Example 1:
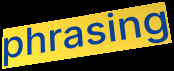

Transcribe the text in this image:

phrasing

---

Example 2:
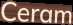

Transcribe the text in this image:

Ceram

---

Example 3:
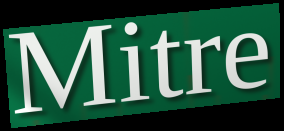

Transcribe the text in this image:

Mitre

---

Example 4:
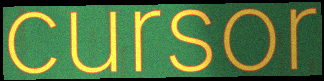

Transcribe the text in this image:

cursor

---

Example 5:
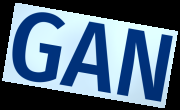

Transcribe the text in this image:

GAN